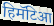
हिमॅटिआ